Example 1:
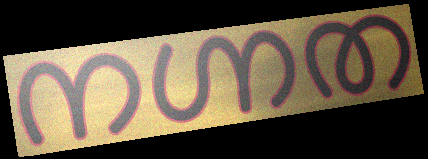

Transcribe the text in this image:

നഗ്നത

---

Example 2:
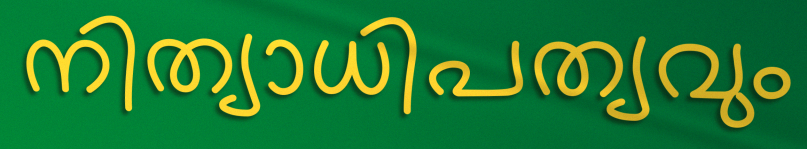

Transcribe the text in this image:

നിത്യാധിപത്യവും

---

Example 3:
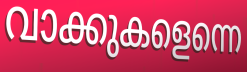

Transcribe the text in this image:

വാക്കുകളെന്നെ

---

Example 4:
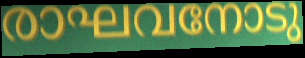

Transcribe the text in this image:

രാഘവനോടു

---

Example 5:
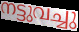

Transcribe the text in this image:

നട്ടുവച്ചു